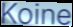
Koine